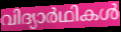
വിദ്യാർഥികൾ